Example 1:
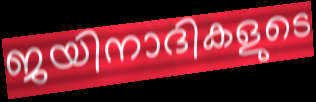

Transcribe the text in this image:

ജയിനാദികളുടെ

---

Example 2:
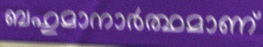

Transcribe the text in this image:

ബഹുമാനാർത്ഥമാണ്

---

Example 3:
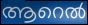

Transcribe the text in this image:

ആറെൽ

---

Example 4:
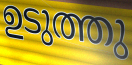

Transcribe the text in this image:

ഉടുത്തു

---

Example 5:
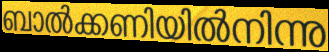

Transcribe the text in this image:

ബാൽക്കണിയിൽനിന്നു